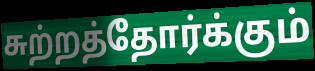
சுற்றத்தோர்க்கும்